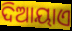
ଦିଆୟାଏ